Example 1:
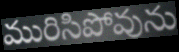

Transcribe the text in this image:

మురిసిపోవును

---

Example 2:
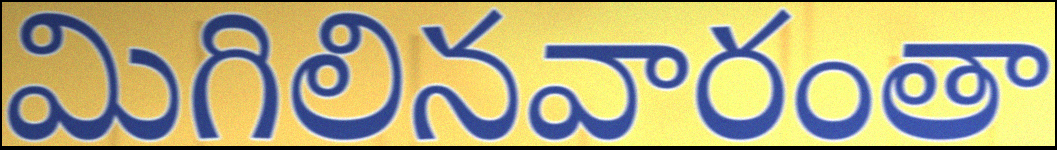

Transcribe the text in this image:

మిగిలినవారంతా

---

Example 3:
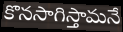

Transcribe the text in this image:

కొనసాగిస్తామనే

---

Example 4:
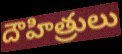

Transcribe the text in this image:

దౌహిత్రులు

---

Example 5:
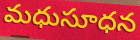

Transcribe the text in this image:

మధుసూధన